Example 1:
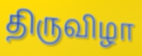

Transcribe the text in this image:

திருவிழா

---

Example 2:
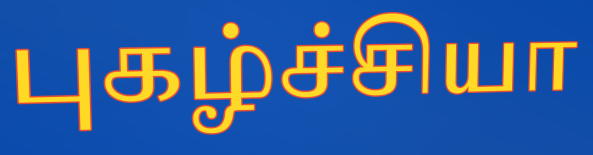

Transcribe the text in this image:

புகழ்ச்சியா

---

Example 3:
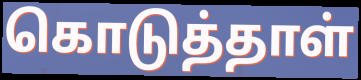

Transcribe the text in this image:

கொடுத்தாள்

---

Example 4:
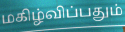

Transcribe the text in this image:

மகிழ்விப்பதும்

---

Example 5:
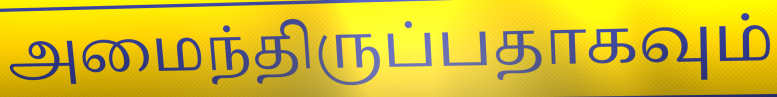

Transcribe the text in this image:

அமைந்திருப்பதாகவும்